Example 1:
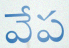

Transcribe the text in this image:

వేప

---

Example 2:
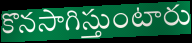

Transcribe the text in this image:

కొనసాగిస్తుంటారు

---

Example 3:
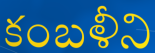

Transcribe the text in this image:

కంబళీని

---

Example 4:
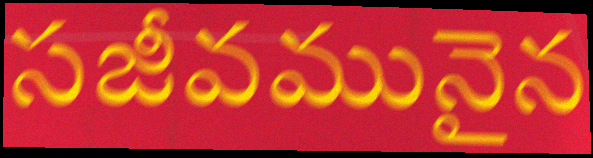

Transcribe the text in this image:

సజీవమునైన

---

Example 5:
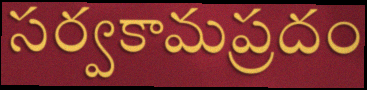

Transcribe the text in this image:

సర్వకామప్రదం